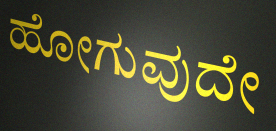
ಹೋಗುವುದೇ